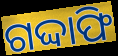
ଗଦ୍ଦାଫି